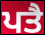
ਪਤੈ